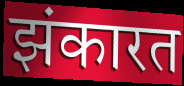
झंकारत